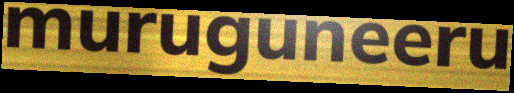
muruguneeru